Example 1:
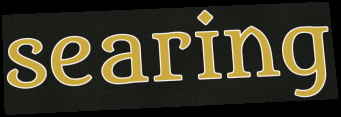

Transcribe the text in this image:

searing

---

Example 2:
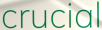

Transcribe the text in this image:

crucial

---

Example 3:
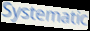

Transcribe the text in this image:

Systematic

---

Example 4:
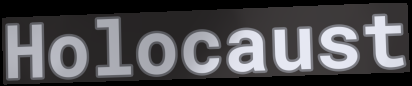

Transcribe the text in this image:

Holocaust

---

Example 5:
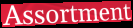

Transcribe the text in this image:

Assortment